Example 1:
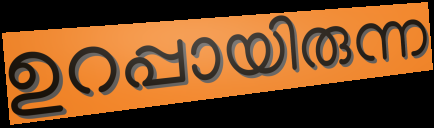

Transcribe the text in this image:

ഉറപ്പായിരുന്ന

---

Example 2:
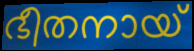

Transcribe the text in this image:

ഭീതനായ്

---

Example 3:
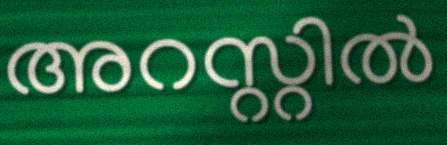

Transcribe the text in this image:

അറസ്റ്റിൽ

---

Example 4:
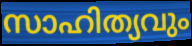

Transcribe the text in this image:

സാഹിത്യവും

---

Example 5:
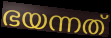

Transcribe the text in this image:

ഭയന്നത്